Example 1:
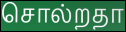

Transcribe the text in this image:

சொல்றதா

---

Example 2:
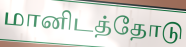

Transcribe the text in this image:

மானிடத்தோடு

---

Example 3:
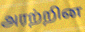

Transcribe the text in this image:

அரற்றின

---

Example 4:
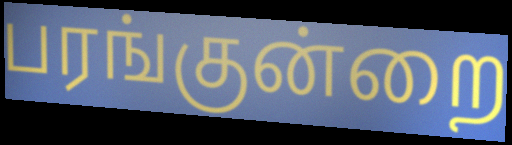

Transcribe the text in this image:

பரங்குன்றை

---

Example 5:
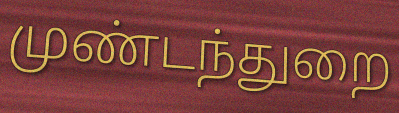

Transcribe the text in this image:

முண்டந்துறை